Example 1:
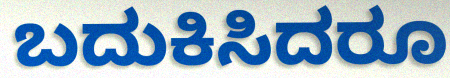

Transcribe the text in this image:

ಬದುಕಿಸಿದರೂ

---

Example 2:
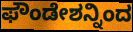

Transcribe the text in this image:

ಫೌಂಡೇಶನ್ನಿಂದ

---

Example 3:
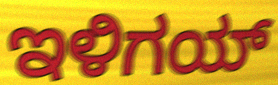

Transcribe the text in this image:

ಇಳಿಗಯ್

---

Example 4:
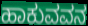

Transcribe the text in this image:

ಹಾಕುವವನ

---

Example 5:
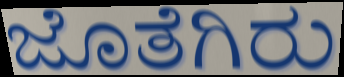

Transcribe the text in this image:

ಜೊತೆಗಿರು